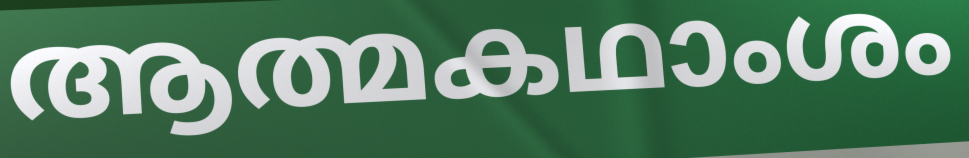
ആത്മകഥാംശം